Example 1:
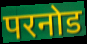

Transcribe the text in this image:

परनोड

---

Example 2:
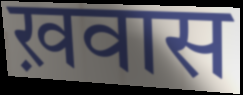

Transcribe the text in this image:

ख़वास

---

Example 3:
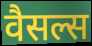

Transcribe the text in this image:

वैसल्स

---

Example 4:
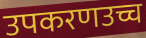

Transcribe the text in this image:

उपकरणउच्च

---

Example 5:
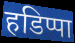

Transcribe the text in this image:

हडिप्पा